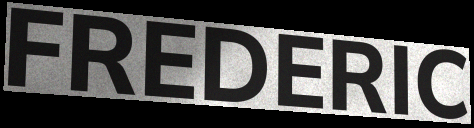
FREDERIC